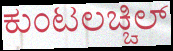
ಕುಂಟಲಚ್ಚಿಲ್